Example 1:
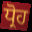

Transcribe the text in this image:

ਧ੍ਰੋਹ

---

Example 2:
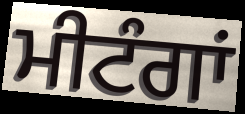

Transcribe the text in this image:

ਮੀਟੰਗਾਂ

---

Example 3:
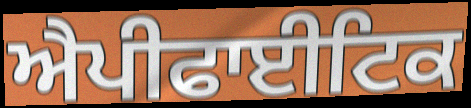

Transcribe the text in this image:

ਐਪੀਫਾਈਟਿਕ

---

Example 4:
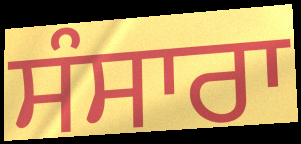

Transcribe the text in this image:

ਸੰਸਾਰਾ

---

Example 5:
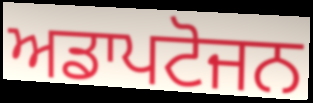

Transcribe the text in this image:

ਅਡਾਪਟੋਜਨ